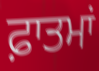
ਫ਼ਾਤਮਾਂ